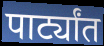
पार्ट्यांत